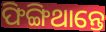
ଫିଙ୍ଗିଥାନ୍ତେ